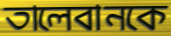
তালেবানকে